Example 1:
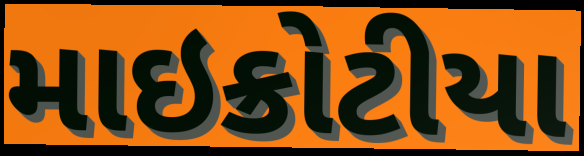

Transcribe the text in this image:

માઇક્રોટીયા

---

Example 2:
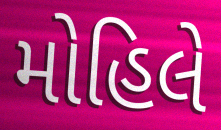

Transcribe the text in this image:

મોહિલે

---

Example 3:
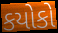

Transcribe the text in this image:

કયોકો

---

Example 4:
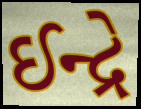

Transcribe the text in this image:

ઈન્દ્રે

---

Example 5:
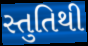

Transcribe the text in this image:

સ્તુતિથી